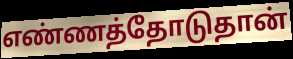
எண்ணத்தோடுதான்